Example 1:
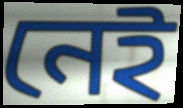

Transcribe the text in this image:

নেই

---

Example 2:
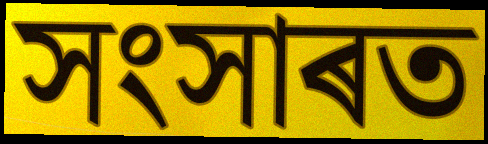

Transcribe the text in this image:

সংসাৰত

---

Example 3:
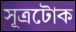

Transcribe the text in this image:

সূত্ৰটোক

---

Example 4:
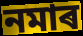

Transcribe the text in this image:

নমাৰ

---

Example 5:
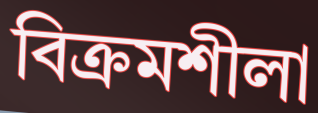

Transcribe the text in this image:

বিক্ৰমশীলা